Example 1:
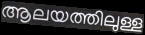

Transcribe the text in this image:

ആലയത്തിലുള്ള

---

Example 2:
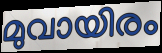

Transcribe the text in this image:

മുവായിരം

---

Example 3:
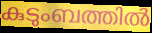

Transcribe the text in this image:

കുടുംബത്തിൽ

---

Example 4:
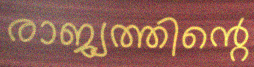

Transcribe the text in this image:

രാജ്യത്തിന്റെ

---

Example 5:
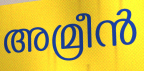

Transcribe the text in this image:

അമ്രീൻ